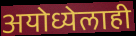
अयोध्येलाही